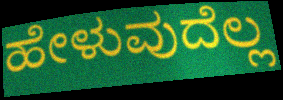
ಹೇಳುವುದೆಲ್ಲ